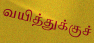
வயித்துக்குச்